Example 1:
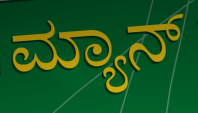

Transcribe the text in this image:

ಮ್ಯಾನ್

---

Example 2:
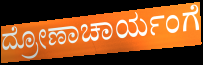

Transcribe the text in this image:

ದ್ರೋಣಾಚಾರ್ಯಂಗೆ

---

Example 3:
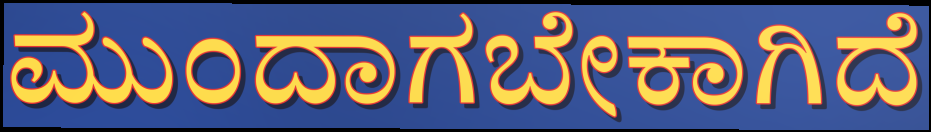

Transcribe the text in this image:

ಮುಂದಾಗಬೇಕಾಗಿದೆ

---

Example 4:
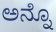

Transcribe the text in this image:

ಅನ್ನೊ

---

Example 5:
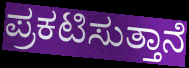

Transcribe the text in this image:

ಪ್ರಕಟಿಸುತ್ತಾನೆ